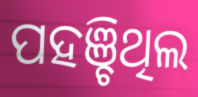
ପହଞ୍ଚିଥିଲ